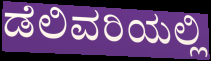
ಡೆಲಿವರಿಯಲ್ಲಿ